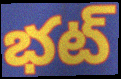
భట్